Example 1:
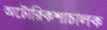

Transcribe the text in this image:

অটোরিকশাচালক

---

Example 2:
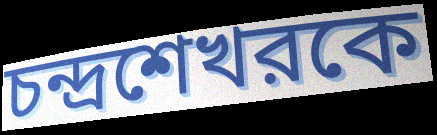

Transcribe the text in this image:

চন্দ্রশেখরকে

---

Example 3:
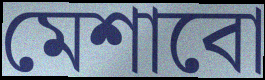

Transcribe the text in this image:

মেশাবো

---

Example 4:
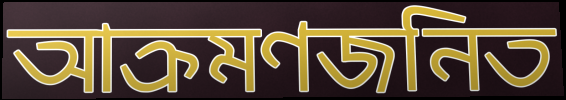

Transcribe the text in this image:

আক্রমণজনিত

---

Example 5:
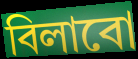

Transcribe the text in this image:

বিলাবো